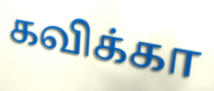
கவிக்கா